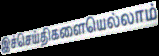
இச்செய்திகளையெல்லாம்